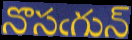
నొసఁగున్